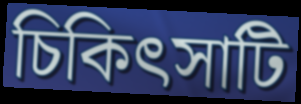
চিকিৎসাটি